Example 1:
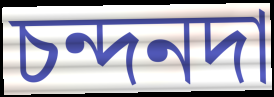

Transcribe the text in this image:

চন্দনদা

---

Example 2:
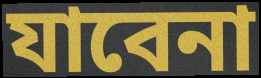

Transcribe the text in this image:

যাবেনা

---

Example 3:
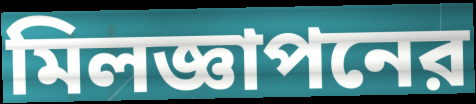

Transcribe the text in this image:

মিলজ্ঞাপনের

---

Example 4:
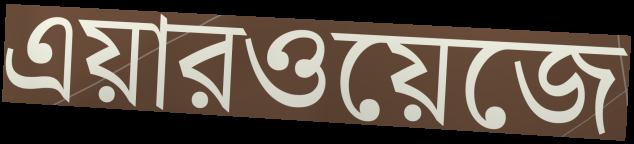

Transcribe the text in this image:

এয়ারওয়েজে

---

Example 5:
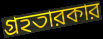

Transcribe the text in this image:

গ্রহতারকার